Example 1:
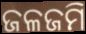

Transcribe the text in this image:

ଜଳଜମି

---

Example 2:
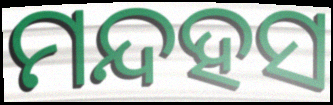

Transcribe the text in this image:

ମନ୍ଦହସ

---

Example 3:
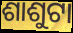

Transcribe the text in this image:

ଶାଶୁଟା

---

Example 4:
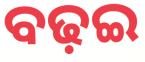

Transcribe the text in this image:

ବଢ଼ଇ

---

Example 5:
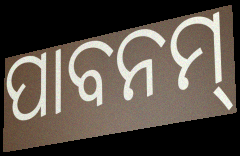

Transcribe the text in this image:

ପାବନମ୍